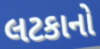
લટકાનો